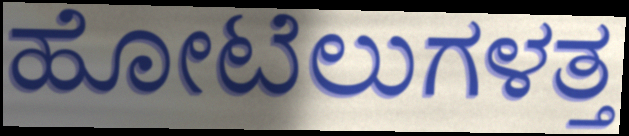
ಹೋಟೆಲುಗಳತ್ತ